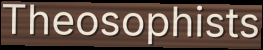
Theosophists